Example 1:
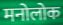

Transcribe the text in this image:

मनोलोक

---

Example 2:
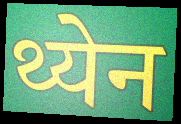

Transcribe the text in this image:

थ्येन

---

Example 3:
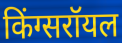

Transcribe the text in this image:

किंग्सरॉयल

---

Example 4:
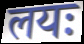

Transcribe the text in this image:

लयः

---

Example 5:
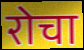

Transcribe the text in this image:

रोचा